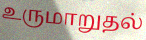
உருமாறுதல்